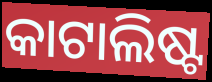
କାଟାଲିଷ୍ଟ